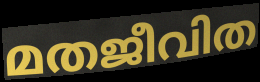
മതജീവിത